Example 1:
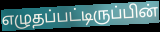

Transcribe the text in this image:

எழுதப்பட்டிருப்பின்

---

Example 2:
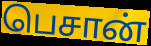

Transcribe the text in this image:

பெசான்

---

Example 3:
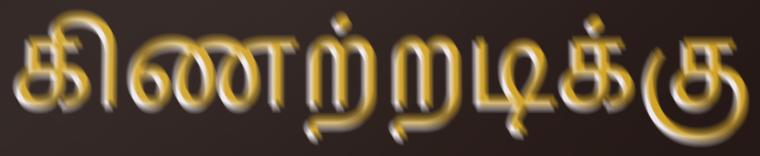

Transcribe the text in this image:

கிணற்றடிக்கு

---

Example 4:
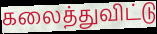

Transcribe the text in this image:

கலைத்துவிட்டு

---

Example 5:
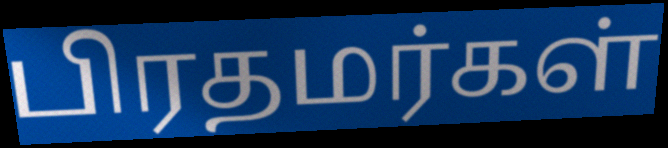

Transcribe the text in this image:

பிரதமர்கள்